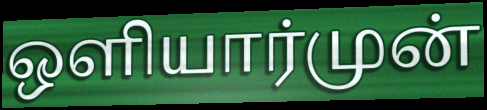
ஒளியார்முன்